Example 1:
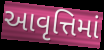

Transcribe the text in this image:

આવૃત્તિમાં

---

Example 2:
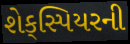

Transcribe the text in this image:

શેક્‌સ્પિયરની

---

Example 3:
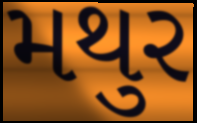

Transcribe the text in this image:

મથુર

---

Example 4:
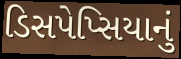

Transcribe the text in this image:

ડિસપેપ્સિયાનું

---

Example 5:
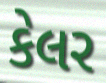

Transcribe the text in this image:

કેલર